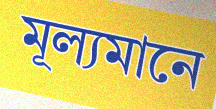
মূল্যমানে